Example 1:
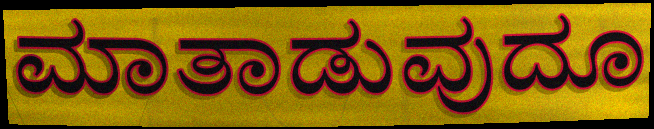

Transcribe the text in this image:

ಮಾತಾಡುವುದೂ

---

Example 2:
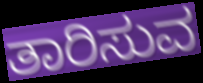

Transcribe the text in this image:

ತಾರಿಸುವ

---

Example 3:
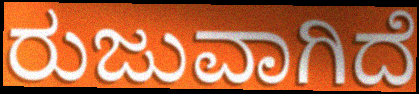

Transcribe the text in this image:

ರುಜುವಾಗಿದೆ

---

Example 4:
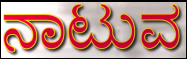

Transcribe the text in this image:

ನಾಟುವ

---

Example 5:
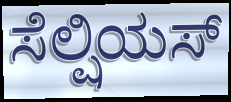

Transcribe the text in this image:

ಸೆಲ್ಷಿಯಸ್